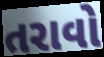
તરાવો